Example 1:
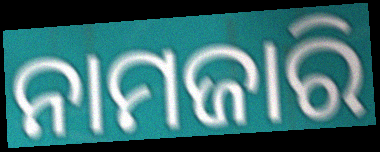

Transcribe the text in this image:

ନାମଜାରି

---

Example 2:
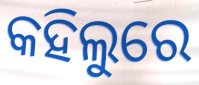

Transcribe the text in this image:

କହିଲୁରେ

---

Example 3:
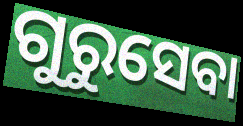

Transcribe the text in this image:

ଗୁରୁସେବା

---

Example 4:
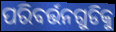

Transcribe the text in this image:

ପରିବର୍ତ୍ତନଗୁଡିକୁ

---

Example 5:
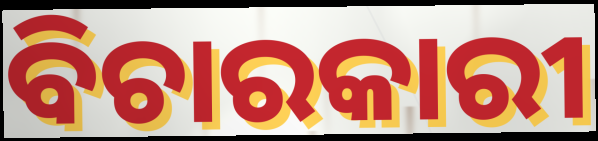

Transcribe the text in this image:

ବିଚାରକାରୀ